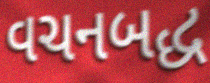
વચનબદ્ધ